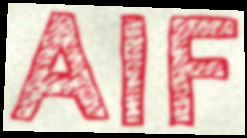
AIF